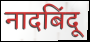
नादबिंदू